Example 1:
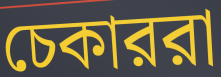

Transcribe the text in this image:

চেকাররা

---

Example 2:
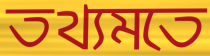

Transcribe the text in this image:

তথ্যমতে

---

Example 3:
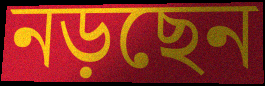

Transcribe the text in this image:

নড়ছেন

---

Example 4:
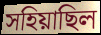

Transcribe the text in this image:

সহিয়াছিল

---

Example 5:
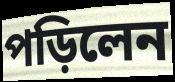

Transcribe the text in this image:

পড়িলেন